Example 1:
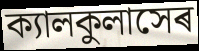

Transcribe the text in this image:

ক্যালকুলাসেৰ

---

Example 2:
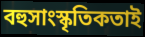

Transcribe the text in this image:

বহুসাংস্কৃতিকতাই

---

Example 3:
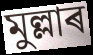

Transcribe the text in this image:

মুল্লাৰ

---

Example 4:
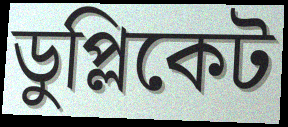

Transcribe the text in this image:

ডুপ্লিকেট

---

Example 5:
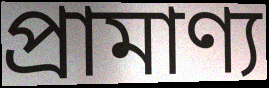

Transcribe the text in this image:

প্ৰামাণ্য